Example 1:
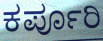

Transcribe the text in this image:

ಕರ್ಪೂರಿ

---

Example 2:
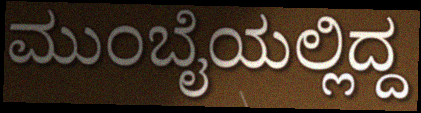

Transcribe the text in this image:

ಮುಂಬೈಯಲ್ಲಿದ್ದ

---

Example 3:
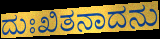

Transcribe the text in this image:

ದುಃಖಿತನಾದನು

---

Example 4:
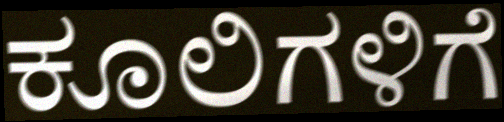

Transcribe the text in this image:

ಕೂಲಿಗಳಿಗೆ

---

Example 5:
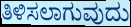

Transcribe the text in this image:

ತಿಳಿಸಲಾಗುವುದು